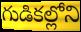
గుడికల్లోని